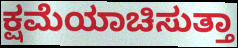
ಕ್ಷಮೆಯಾಚಿಸುತ್ತಾ